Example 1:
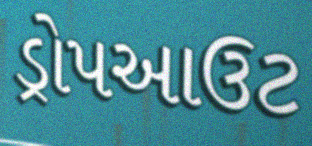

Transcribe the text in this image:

ડ્રોપઆઉટ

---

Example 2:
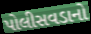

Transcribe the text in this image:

પોલીસવડાનો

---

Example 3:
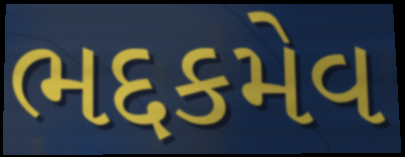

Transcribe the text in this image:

ભદ્દકમેવ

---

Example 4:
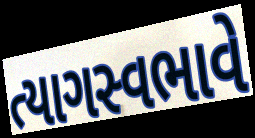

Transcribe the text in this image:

ત્યાગસ્વભાવે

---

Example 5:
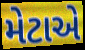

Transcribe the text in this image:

મેટાએ